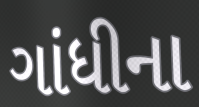
ગાંધીના